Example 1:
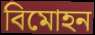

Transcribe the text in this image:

বিমোহন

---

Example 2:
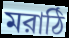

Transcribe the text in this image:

মরাঠি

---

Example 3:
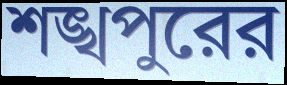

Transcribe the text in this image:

শঙ্খপুরের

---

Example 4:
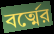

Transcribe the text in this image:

বর্ত্মের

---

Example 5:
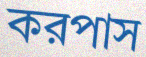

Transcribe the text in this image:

করপাস